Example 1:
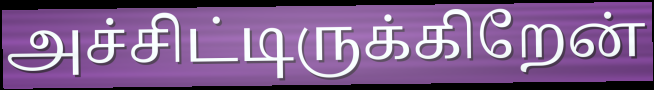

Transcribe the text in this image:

அச்சிட்டிருக்கிறேன்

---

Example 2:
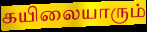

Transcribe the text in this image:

கயிலையாரும்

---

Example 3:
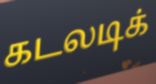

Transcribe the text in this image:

கடலடிக்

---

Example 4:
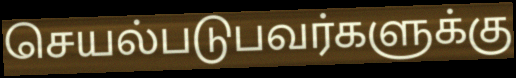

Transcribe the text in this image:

செயல்படுபவர்களுக்கு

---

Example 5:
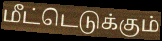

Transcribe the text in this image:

மீட்டெடுக்கும்